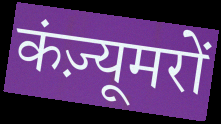
कंज़्यूमरों